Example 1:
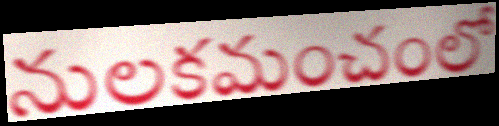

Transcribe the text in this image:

నులకమంచంలో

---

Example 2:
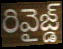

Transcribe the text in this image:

రివైజ్డ్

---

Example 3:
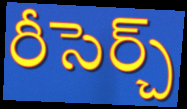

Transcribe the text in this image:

రీసెర్చ్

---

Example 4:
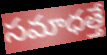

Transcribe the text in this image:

సమాధత్తే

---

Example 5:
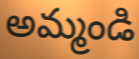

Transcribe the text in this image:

అమ్మండి